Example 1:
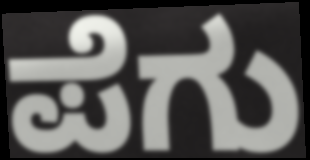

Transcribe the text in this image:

ಪೆಗು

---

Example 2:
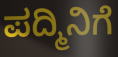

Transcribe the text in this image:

ಪದ್ಮಿನಿಗೆ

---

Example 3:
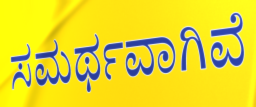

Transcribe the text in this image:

ಸಮರ್ಥವಾಗಿವೆ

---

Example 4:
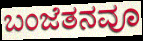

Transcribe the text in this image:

ಬಂಜೆತನವೂ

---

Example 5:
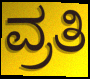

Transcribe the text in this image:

ವ್ರತಿ